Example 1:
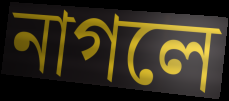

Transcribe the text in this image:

নাগলে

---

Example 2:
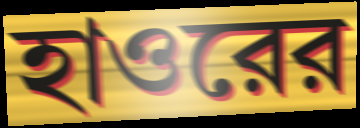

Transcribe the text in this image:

হাওরের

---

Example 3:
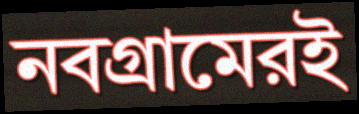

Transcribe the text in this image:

নবগ্রামেরই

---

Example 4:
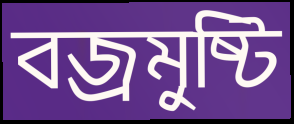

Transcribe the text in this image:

বজ্রমুষ্টি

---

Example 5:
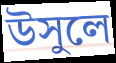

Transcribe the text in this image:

উসুলে